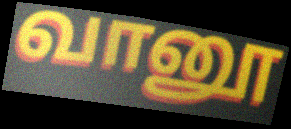
வானூ